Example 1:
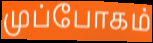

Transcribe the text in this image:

முப்போகம்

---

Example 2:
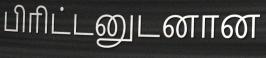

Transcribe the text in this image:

பிரிட்டனுடனான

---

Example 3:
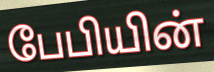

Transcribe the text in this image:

பேபியின்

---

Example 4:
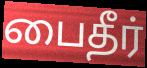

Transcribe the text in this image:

பைதீர்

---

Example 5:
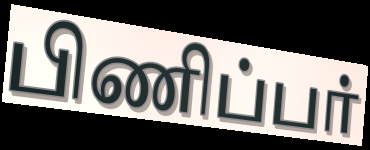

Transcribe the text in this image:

பிணிப்பர்